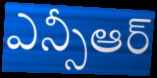
ఎన్సీఆర్